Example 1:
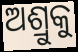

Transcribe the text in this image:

ଅଶ୍ରୁକୁ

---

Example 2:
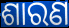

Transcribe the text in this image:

ଶାରଣ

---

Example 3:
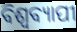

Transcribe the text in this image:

ବିଶ୍ୱବ୍ୟାପୀ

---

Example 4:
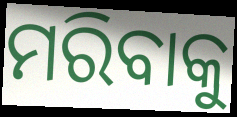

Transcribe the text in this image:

ମରିବାକୁ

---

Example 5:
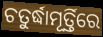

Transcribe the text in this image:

ଚତୁର୍ଦ୍ଧାମୂର୍ତ୍ତିରେ